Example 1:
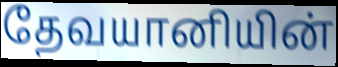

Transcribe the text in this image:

தேவயானியின்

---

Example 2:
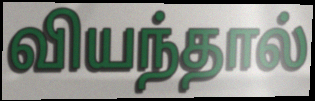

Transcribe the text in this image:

வியந்தால்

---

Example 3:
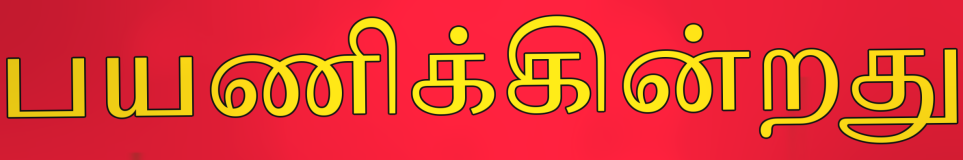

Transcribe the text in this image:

பயணிக்கின்றது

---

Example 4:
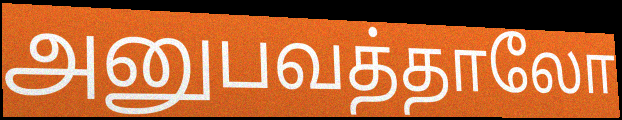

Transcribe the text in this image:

அனுபவத்தாலோ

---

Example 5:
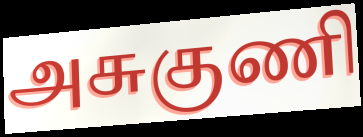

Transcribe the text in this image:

அசுகுணி